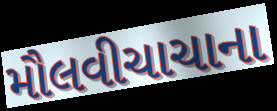
મૌલવીચાચાના